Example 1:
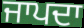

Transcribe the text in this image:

ਜਾਪਦਾ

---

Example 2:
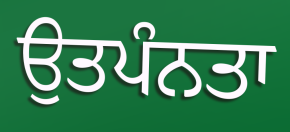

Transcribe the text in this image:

ਉਤਪੰਨਤਾ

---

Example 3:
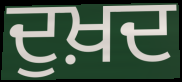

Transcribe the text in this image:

ਦੁਖ਼ਦ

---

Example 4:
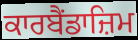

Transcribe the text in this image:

ਕਾਰਬੈਂਡਾਜ਼ਿਮ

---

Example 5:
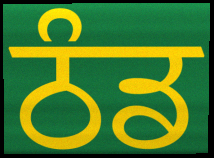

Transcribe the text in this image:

ਠੰਡ